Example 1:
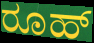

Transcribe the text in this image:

ರೂಹ್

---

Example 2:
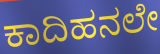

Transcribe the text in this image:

ಕಾದಿಹನಲೇ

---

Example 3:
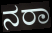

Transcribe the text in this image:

ನರಾ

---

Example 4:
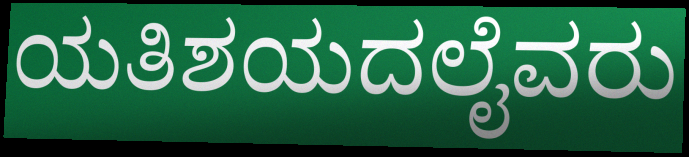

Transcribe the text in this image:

ಯತಿಶಯದಲೈವರು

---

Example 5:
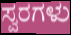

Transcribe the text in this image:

ಸ್ವರಗಳು